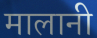
मालानी